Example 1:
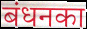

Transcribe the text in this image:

बंधनका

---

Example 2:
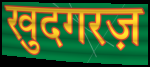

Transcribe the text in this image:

खुदगरज़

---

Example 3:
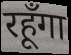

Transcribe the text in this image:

रहूँगा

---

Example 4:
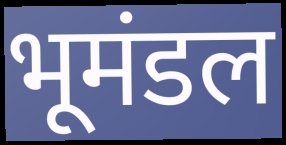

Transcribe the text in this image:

भूमंडल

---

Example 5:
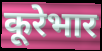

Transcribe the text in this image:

कूरेभार